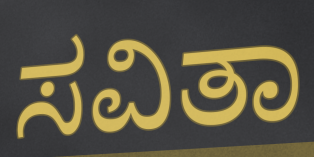
ಸವಿತಾ